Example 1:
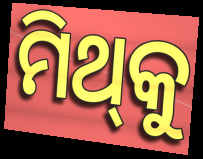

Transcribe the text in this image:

ମିଥ୍‍କୁ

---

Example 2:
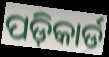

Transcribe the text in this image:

ପଡ଼ିକାର୍ଡ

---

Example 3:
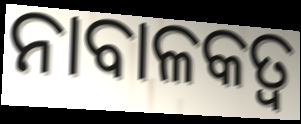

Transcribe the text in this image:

ନାବାଳକତ୍ଵ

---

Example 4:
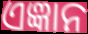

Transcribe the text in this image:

ଏଜ୍ଞାନ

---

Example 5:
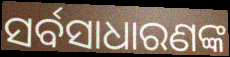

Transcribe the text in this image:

ସର୍ବସାଧାରଣଙ୍କ